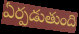
ఏర్పడుతుంది